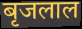
बृजलाल